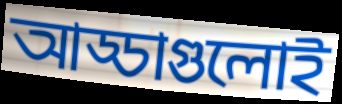
আড্ডাগুলোই